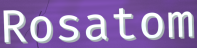
Rosatom